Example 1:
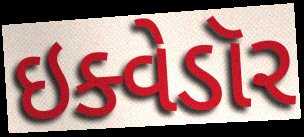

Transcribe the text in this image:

ઇક્વેડૉર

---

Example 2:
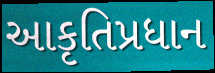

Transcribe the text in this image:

આકૃતિપ્રધાન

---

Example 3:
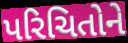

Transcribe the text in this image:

પરિચિતોને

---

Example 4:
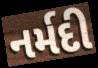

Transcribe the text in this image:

નર્મદી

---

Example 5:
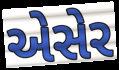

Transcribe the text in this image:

એસેર